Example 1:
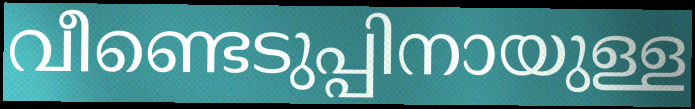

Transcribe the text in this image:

വീണ്ടെടുപ്പിനായുള്ള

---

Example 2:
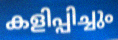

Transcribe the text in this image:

കളിപ്പിച്ചും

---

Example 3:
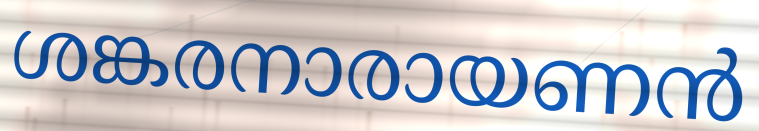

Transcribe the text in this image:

ശങ്കരനാരായണൻ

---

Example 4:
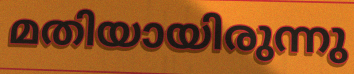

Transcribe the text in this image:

മതിയായിരുന്നു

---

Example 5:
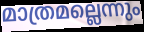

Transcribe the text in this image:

മാത്രമല്ലെന്നും